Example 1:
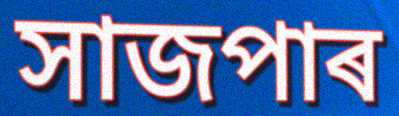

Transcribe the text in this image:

সাজপাৰ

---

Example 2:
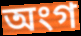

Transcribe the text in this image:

অংগ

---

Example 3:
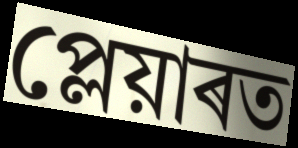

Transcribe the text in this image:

প্লেয়াৰত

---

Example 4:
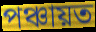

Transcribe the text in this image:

পঞ্চায়ত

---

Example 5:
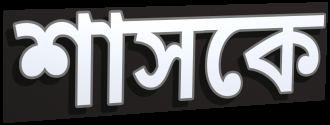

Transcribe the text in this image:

শাসকে